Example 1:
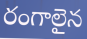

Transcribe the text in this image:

రంగాలైన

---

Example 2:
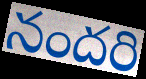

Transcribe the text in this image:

నందరి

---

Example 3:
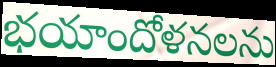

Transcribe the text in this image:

భయాందోళనలను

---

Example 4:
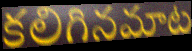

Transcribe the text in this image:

కలిగినమాట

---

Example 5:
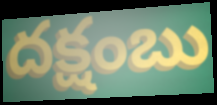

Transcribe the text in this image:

దక్షంబు